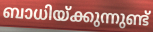
ബാധിയ്ക്കുന്നുണ്ട്